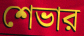
শেভার